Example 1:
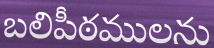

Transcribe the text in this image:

బలిపీఠములను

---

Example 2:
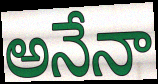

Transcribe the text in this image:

అనేనా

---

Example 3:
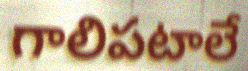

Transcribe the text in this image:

గాలిపటాలే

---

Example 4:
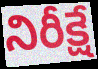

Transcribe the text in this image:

నిరీక్షే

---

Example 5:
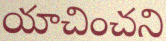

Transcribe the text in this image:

యాచించని